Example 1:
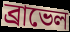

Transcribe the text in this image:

ব্রাভেল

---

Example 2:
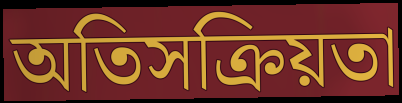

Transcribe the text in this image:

অতিসক্রিয়তা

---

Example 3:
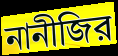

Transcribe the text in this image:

নানীজির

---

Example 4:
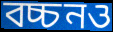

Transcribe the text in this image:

বচ্চনও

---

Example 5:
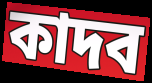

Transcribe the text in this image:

কাদব